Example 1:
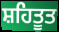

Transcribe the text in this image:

ਸ਼ਹਿਤੂਤ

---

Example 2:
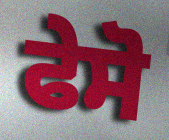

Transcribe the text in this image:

ਫੇਸੋ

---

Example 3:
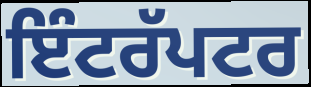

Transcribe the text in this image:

ਇੰਟਰੱਪਟਰ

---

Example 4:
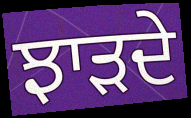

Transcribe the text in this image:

ਝਾੜਦੇ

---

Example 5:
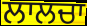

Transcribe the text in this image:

ਲਾਲਚਾ